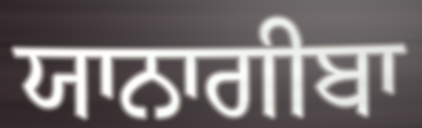
ਯਾਨਾਗੀਬਾ